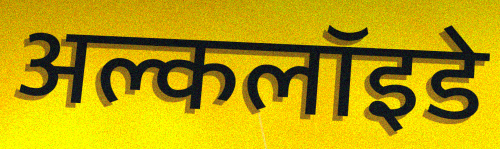
अल्कलॉइडे